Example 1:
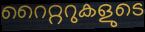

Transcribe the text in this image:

റൈറ്ററുകളുടെ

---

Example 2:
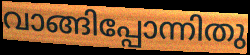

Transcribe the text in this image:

വാങ്ങിപ്പോന്നിതു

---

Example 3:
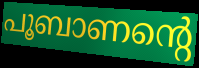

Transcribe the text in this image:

പൂബാണന്റെ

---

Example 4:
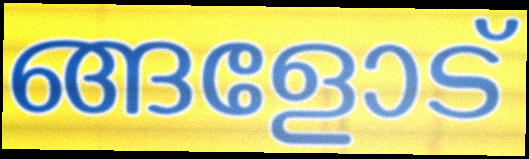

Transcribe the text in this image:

ങ്ങളോട്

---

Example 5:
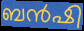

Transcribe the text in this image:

ബൻഷി